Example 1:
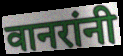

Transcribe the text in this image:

वानरांनी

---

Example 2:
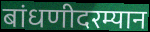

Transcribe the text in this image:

बांधणीदरम्यान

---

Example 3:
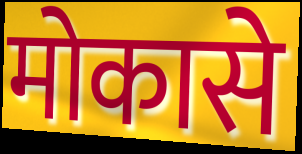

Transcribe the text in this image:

मोकासे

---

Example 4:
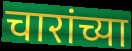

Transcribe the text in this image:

चारांच्या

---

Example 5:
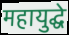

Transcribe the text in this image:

महायुद्घे